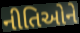
નીતિઓને